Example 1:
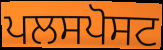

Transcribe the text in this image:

ਪਲਸਪੋਸਟ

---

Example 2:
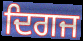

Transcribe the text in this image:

ਦਿਗਜ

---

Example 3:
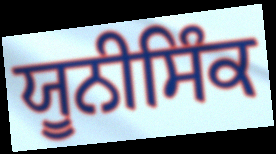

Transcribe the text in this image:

ਯੂਨੀਸਿੰਕ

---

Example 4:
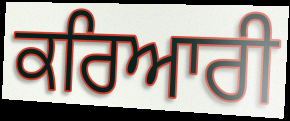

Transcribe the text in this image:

ਕਰਿਆਰੀ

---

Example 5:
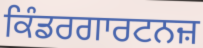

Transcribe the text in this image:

ਕਿੰਡਰਗਾਰਟਨਜ਼